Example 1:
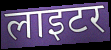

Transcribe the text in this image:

लाइटर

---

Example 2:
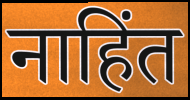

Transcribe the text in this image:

नाहिंत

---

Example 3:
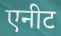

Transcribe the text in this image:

एनीट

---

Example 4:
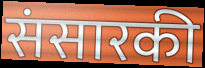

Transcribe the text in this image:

संसारकी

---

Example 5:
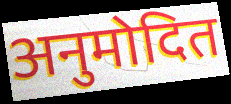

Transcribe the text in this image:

अनुमोदित